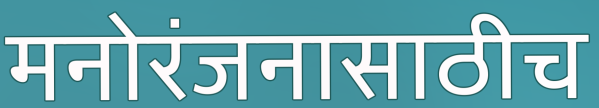
मनोरंजनासाठीच